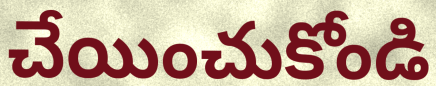
చేయించుకోండి